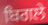
ਬਿਗਲੇ